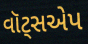
વૉટ્સએપ